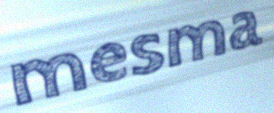
mesma